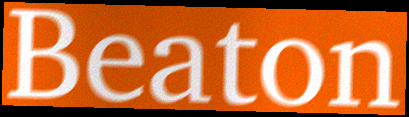
Beaton